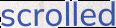
scrolled